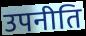
उपनीति